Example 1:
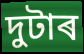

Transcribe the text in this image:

দুটাৰ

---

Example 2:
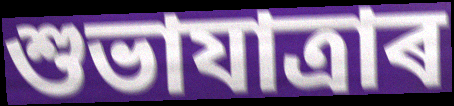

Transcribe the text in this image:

শুভাযাত্ৰাৰ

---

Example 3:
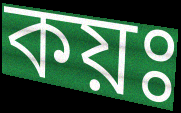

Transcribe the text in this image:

কয়ঃ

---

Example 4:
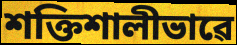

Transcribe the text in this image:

শক্তিশালীভাৱে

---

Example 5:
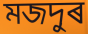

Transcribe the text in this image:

মজদুৰ